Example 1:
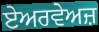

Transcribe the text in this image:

ਏਅਰਵੇਅਜ਼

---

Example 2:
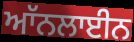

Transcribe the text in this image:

ਆੱਨਲਾਈਨ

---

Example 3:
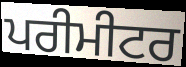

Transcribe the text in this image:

ਪਰੀਮੀਟਰ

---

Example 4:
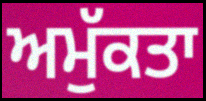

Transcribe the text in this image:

ਅਮੁੱਕਤਾ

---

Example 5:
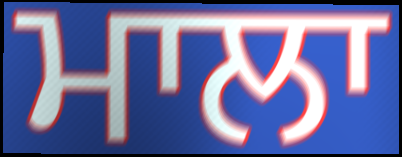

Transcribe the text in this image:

ਮਾਲਾ